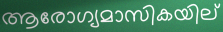
ആരോഗ്യമാസികയില്